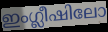
ഇംഗ്ലീഷിലോ